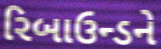
રિબાઉન્ડને